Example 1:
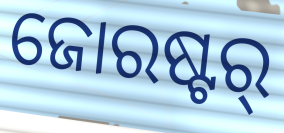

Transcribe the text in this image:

ଜୋରଷ୍ଟର୍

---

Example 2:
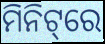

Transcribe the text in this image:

ମିନିଟ୍‌ରେ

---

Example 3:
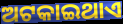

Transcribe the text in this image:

ଅଟକାଇଥାଏ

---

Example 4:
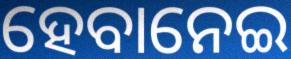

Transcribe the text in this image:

ହେବାନେଇ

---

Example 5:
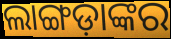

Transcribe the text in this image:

ଲାଙ୍ଗଡ଼ାଙ୍କର